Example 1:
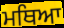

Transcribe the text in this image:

ਮਥਿਆ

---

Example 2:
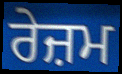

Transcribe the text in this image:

ਰੇਜ਼ਮ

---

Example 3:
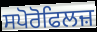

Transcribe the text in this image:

ਸਪੋਰੋਫਿਲਜ਼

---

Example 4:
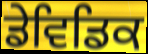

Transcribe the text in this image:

ਡੇਵਿਡਿਕ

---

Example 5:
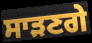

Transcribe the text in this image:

ਸਾੜਣਗੇ